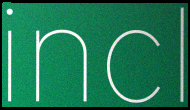
incl